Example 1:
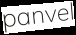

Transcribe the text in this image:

panvel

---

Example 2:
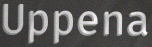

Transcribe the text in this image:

Uppena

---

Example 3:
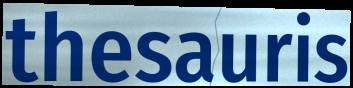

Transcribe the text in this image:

thesauris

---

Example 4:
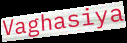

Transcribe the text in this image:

Vaghasiya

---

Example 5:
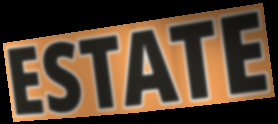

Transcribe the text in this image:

ESTATE